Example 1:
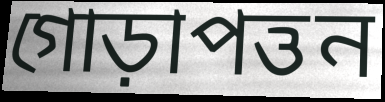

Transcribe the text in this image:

গোড়াপত্তন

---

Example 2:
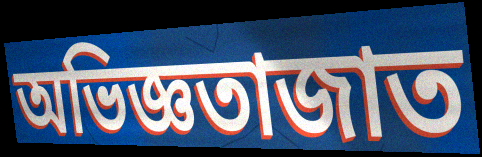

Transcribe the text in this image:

অভিজ্ঞতাজাত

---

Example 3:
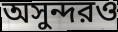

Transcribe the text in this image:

অসুন্দরও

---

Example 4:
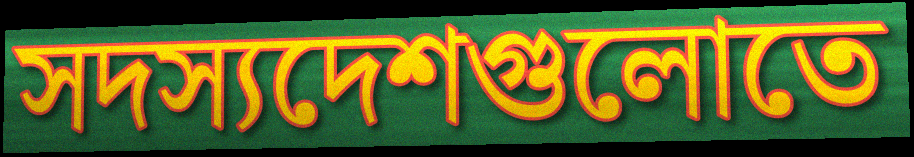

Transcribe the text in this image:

সদস্যদেশগুলোতে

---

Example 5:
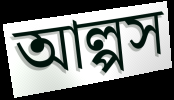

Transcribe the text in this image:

আল্পস